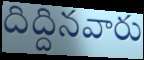
దిద్దినవారు